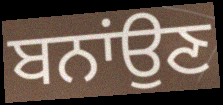
ਬਨਾਂਉਣ